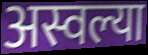
अस्वल्या